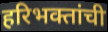
हरिभक्तांची